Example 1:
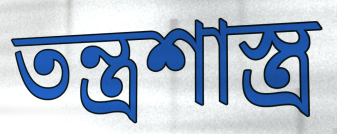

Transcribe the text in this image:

তন্ত্রশাস্ত্র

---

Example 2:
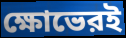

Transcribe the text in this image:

ক্ষোভেরই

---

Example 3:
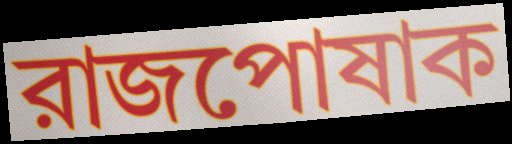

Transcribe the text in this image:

রাজপোষাক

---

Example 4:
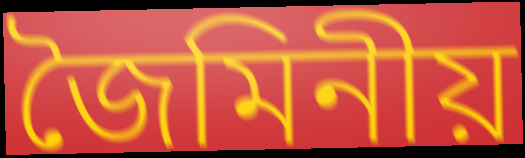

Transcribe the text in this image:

জৈমিনীয়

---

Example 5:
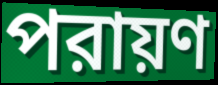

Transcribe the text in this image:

পরায়ণ